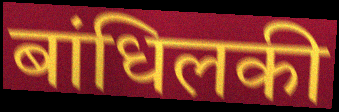
बांधिलकी